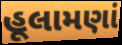
હૂલામણાં